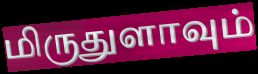
மிருதுளாவும்